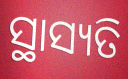
ସ୍ଥାସ୍ୟତି